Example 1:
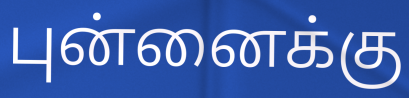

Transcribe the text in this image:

புன்னைக்கு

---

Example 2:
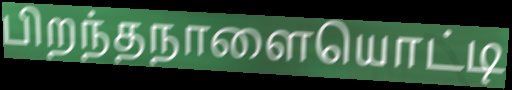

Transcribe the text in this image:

பிறந்தநாளையொட்டி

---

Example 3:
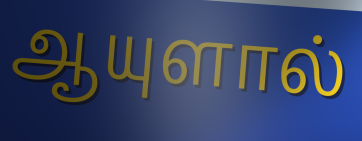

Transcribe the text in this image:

ஆயுளால்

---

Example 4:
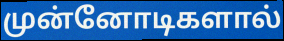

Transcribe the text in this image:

முன்னோடிகளால்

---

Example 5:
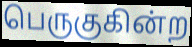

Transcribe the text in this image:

பெருகுகின்ற